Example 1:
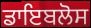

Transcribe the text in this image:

ਡਾਇਬਲੋਸ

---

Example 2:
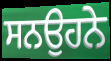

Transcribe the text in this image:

ਸਨਉਹਨੇ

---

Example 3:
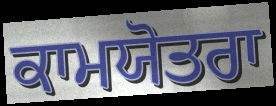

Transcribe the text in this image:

ਕਾਮਯੋਤਰਾ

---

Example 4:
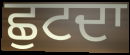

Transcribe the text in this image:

ਛੁਟਦਾ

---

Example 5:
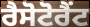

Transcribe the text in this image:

ਰੈਸੋਟੋਰੈਂਟ